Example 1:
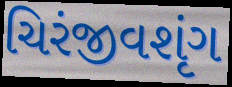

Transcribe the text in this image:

ચિરંજીવશૃંગ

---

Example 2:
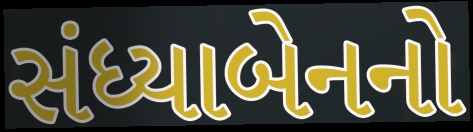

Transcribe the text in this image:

સંધ્યાબેનનો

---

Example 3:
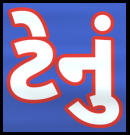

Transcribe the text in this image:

ટેનું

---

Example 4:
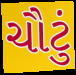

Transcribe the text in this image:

ચૌટું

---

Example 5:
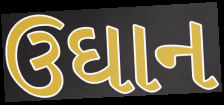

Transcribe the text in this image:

ઉઘાન